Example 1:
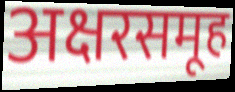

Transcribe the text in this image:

अक्षरसमूह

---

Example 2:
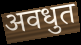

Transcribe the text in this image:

अवधुत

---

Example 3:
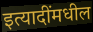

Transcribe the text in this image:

इत्यादींमधील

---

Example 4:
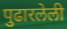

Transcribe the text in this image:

पुढारलेली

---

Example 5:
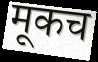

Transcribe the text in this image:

मूकच